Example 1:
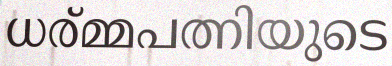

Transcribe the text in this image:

ധര്മ്മപത്നിയുടെ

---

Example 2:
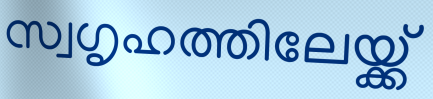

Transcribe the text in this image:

സ്വഗൃഹത്തിലേയ്ക്ക്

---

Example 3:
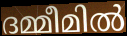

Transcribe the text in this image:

ദമ്മീമിൽ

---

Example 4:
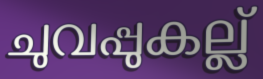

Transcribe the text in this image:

ചുവപ്പുകല്ല്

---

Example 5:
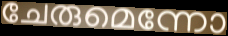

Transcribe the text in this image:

ചേരുമെന്നോ